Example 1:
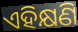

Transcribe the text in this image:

ଏହିକ୍ଷଣି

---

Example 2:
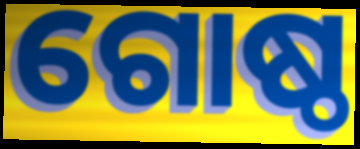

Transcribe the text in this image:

ଗୋଷ୍ଠ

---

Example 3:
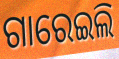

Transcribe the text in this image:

ଗାରେଇଲି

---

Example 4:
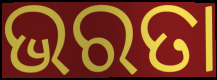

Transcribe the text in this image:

ଭରତା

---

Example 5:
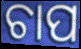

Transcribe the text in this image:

ଚାପ